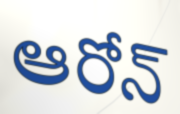
ఆరోన్